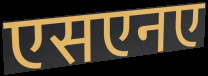
एसएनए